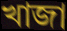
খাজা